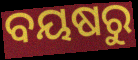
ବୟଷରୁ